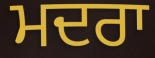
ਮਦਰਾ